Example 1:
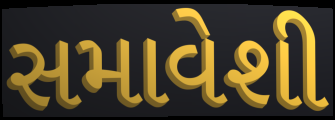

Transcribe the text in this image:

સમાવેશી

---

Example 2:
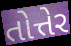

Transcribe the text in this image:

તોત્તેર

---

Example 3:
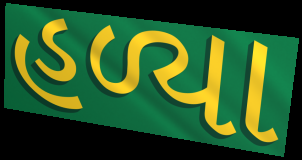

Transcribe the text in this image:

હળ્યા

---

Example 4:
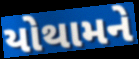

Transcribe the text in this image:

યોથામને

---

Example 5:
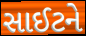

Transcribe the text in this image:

સાઈટને